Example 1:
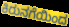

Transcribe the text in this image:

ಕಿರುನಗೆಯಿಂದ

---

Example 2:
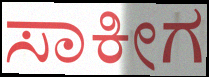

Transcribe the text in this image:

ಸಾಕೀಗ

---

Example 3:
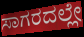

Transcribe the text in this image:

ಸಾಗರದಲ್ಲೇ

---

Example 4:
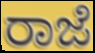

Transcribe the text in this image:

ರಾಜೆ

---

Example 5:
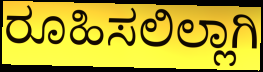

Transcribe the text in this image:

ರೂಹಿಸಲಿಲ್ಲಾಗಿ